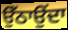
ਉੱਠਾਉਂਦਾ